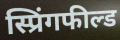
स्प्रिंगफील्ड